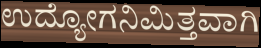
ಉದ್ಯೋಗನಿಮಿತ್ತವಾಗಿ